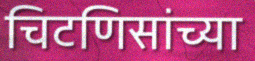
चिटणिसांच्या